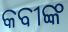
କବୀଙ୍କ